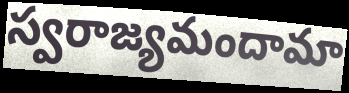
స్వరాజ్యమందామా